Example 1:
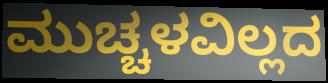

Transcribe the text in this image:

ಮುಚ್ಚಳವಿಲ್ಲದ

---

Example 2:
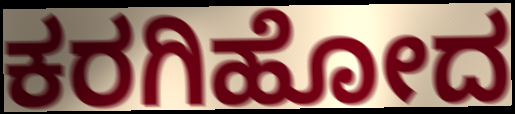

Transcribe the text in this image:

ಕರಗಿಹೋದ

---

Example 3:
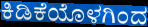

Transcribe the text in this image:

ಕಿಡಿಕೆಯೊಳಗಿಂದ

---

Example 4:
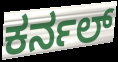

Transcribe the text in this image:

ಕರ್ನಲ್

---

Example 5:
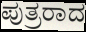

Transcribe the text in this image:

ಪುತ್ರರಾದ